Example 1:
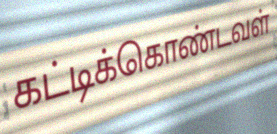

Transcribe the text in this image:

கட்டிக்கொண்டவள்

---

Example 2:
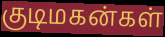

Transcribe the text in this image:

குடிமகன்கள்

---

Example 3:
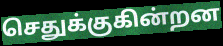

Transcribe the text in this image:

செதுக்குகின்றன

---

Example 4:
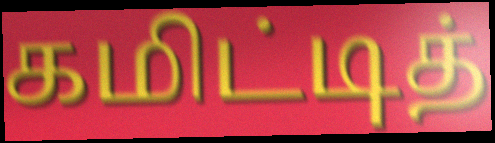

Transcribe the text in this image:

கமிட்டித்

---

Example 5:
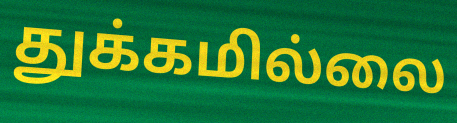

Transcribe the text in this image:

துக்கமில்லை